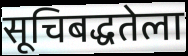
सूचिबद्धतेला